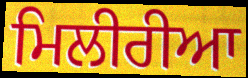
ਮਿਲੀਰੀਆ